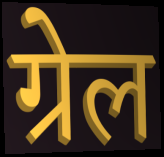
ग्रेल